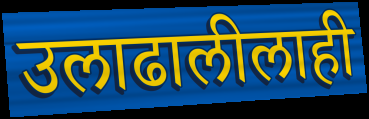
उलाढालीलाही